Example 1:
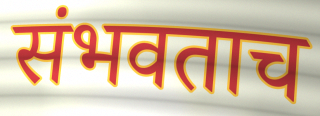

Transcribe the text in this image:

संभवताच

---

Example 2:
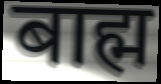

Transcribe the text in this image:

बाह्म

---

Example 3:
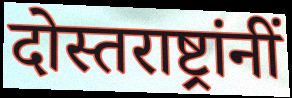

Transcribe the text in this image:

दोस्तराष्ट्रांनीं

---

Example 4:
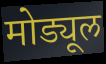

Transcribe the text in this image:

मोड्यूल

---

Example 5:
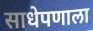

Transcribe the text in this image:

साधेपणाला